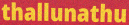
thallunathu